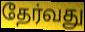
தேர்வது